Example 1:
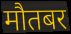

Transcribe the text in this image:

मौतबर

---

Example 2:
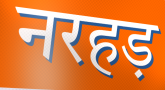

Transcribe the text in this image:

नरहड़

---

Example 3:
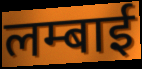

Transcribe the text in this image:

लम्बाई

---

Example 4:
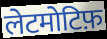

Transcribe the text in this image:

लेटमोटिफ़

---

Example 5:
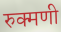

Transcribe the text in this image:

रुक्मणी